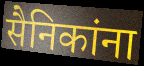
सैनिकांना